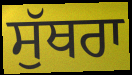
ਸੁੱਥਰਾ